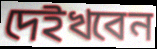
দেইখবেন